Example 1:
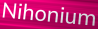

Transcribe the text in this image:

Nihonium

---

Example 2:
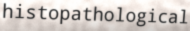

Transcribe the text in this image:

histopathological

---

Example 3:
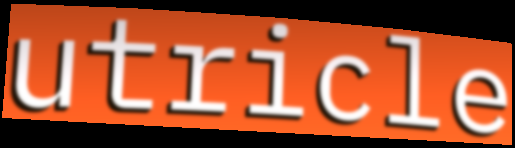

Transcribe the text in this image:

utricle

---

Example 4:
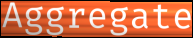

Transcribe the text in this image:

Aggregate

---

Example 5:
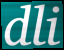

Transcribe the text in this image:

dli